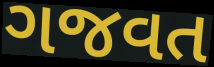
ગજવત